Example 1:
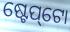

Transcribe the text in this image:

ଷ୍ଟେପ୍‌ଟୋ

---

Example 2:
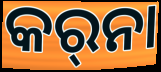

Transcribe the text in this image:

କର୍‍ନା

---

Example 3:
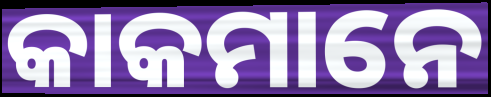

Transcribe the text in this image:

କାକମାନେ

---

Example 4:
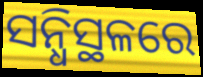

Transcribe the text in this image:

ସନ୍ଧିସ୍ଥଳରେ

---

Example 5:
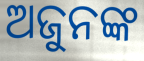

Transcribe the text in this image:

ଅଜୁନଙ୍କ